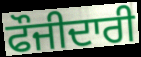
ਫੌਜੀਦਾਰੀ